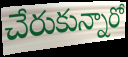
చేరుకున్నారో